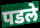
पडले